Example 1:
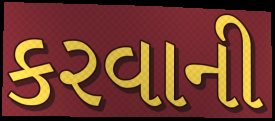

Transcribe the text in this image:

કરવાની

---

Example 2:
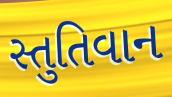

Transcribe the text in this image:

સ્તુતિવાન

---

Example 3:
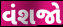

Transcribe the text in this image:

વંશજો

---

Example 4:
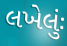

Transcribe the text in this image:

લખેલુંઃ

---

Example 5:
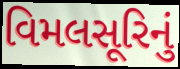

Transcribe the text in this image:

વિમલસૂરિનું